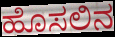
ಹೊಸಲಿನ